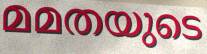
മമതയുടെ